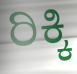
ರಿಕ್ಕಿ